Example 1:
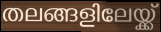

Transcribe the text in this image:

തലങ്ങളിലേയ്ക്ക്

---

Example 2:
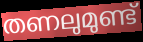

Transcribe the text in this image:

തണലുമുണ്ട്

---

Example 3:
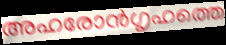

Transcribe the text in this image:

അഹരോൻഗൃഹത്തെ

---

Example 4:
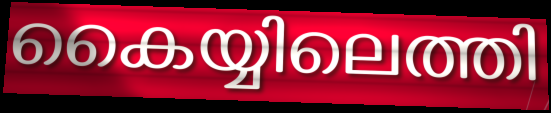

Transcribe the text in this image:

കൈയ്യിലെത്തി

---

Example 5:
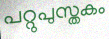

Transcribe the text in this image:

പറ്റുപുസ്തകം